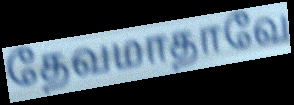
தேவமாதாவே